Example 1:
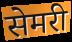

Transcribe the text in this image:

सेमरी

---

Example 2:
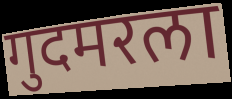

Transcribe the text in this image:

गुदमरला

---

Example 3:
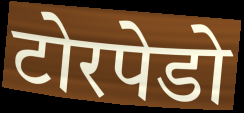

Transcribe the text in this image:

टोरपेडो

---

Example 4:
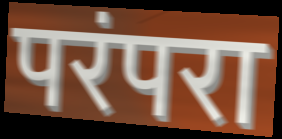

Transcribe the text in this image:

परंपरा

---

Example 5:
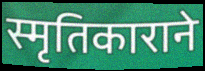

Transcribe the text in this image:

स्मृतिकाराने